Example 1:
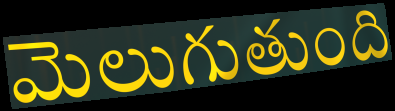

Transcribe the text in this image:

మెలుగుతుంది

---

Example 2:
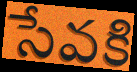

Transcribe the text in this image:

సేవకి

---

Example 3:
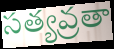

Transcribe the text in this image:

సత్యవ్రతా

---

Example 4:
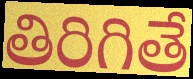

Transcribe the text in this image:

తిరిగితే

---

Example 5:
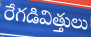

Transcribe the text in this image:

రేగడివిత్తులు